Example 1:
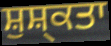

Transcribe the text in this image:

ਸ਼ੁਸ਼੍ਕਤਾ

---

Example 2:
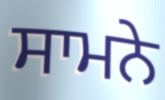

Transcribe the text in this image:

ਸਾਮਨੇ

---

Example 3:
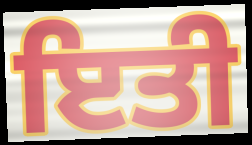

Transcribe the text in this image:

ਇਤੀ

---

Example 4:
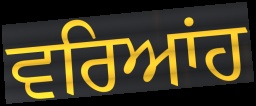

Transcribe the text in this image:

ਵਰਿਆਂਹ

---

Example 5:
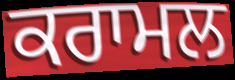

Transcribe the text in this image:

ਕਰਾਮਲ